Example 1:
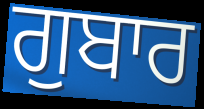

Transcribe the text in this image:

ਗੁਬਾਰ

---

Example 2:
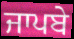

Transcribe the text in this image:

ਜਾਪਬੇ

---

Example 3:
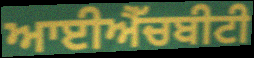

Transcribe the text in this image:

ਆਈਐੱਚਬੀਟੀ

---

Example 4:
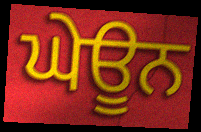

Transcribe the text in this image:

ਘੇਊਨ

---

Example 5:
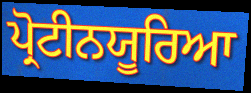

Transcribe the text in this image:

ਪ੍ਰੋਟੀਨਯੂਰਿਆ